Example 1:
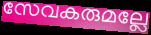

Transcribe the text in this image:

സേവകരുമല്ലേ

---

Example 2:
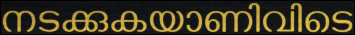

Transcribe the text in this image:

നടക്കുകയാണിവിടെ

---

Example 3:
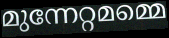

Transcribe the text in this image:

മുന്നേറ്റമമ്മെ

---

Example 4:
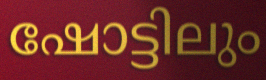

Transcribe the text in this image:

ഷോട്ടിലും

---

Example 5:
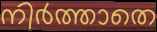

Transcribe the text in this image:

നിർത്താതെ